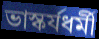
ভাস্কর্যধর্মী